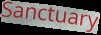
Sanctuary